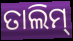
ତାଲିମ୍